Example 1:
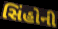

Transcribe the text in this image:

સિંહોની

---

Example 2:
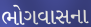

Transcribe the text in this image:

ભોગવાસના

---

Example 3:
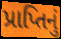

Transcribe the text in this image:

પ્રાપ્‍તિનું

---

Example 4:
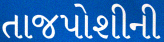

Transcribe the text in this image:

તાજપોશીની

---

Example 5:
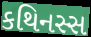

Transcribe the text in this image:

કથિનસ્સ